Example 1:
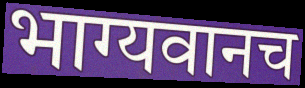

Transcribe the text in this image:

भाग्यवानच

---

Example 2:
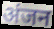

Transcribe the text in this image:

अंजन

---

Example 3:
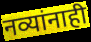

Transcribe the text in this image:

नव्यांनाही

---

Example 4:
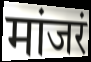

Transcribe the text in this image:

मांजरं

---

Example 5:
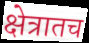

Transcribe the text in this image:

क्षेत्रातच